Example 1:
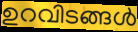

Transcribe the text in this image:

ഉറവിടങ്ങൾ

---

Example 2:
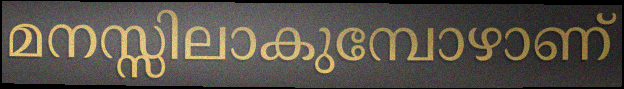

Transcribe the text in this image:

മനസ്സിലാകുമ്പോഴാണ്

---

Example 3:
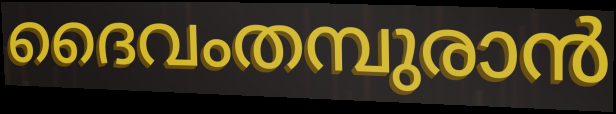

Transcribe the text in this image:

ദൈവംതമ്പുരാൻ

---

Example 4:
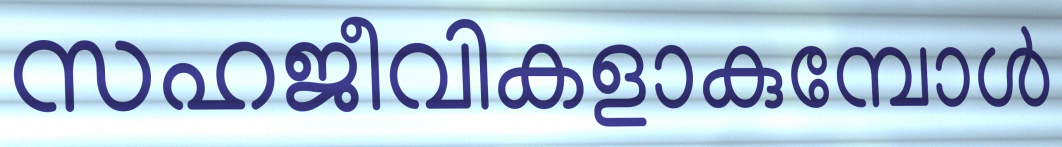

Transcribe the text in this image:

സഹജീവികളാകുമ്പോൾ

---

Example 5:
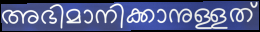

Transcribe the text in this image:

അഭിമാനിക്കാനുള്ളത്